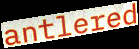
antlered